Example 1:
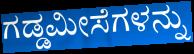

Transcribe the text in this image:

ಗಡ್ಡಮೀಸೆಗಳನ್ನು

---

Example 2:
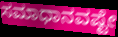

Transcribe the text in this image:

ಸಮಾಧಾನವಷ್ಟೇ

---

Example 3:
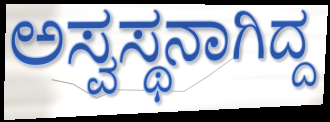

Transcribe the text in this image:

ಅಸ್ವಸ್ಥನಾಗಿದ್ದ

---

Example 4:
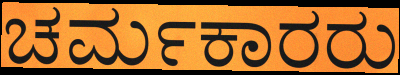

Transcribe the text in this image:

ಚರ್ಮಕಾರರು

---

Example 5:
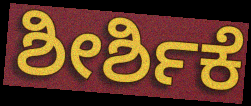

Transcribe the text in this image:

ಶೀರ್ಶಿಕೆ